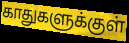
காதுகளுக்குள்